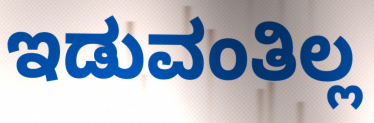
ಇಡುವಂತಿಲ್ಲ